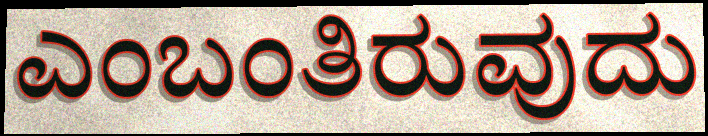
ಎಂಬಂತಿರುವುದು